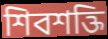
শিবশক্তি